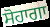
ਸੋਹਾਗਾ